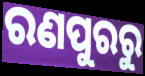
ରଣପୁରରୁ